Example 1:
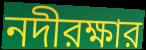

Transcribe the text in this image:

নদীরক্ষার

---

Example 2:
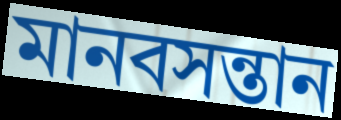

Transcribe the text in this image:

মানবসন্তান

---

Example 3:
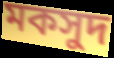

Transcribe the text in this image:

মকসুদ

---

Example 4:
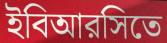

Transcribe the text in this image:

ইবিআরসিতে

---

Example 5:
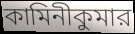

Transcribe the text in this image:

কামিনীকুমার